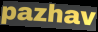
pazhav